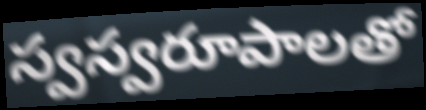
స్వస్వరూపాలతో